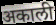
अकाली